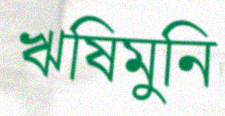
ঋষিমুনি